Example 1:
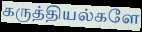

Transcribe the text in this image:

கருத்தியல்களே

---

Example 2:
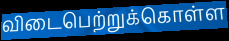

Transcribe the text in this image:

விடைபெற்றுக்கொள்ள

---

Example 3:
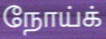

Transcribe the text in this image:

நோய்க்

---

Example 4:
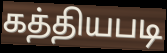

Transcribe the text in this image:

கத்தியபடி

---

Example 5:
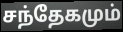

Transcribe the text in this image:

சந்தேகமும்